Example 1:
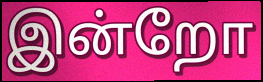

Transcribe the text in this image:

இன்றோ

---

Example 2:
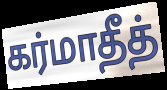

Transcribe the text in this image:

கர்மாதீத்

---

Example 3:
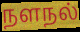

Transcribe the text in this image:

நளநல்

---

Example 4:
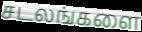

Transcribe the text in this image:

சடலங்களை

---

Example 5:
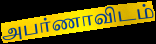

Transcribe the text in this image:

அபர்ணாவிடம்